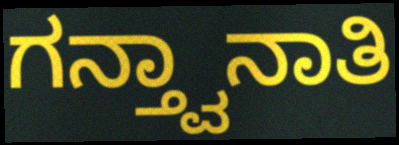
ಗನ್ತ್ವಾನಾತಿ